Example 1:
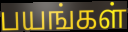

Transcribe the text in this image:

பயங்கள்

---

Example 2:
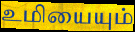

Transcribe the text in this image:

உமியையும்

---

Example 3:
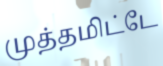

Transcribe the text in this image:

முத்தமிட்டே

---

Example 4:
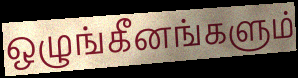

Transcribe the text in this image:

ஒழுங்கீனங்களும்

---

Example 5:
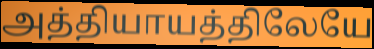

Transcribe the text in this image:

அத்தியாயத்திலேயே